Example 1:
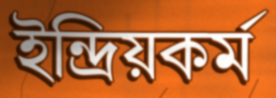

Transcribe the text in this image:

ইন্দ্রিয়কর্ম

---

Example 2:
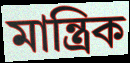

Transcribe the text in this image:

মান্ত্রিক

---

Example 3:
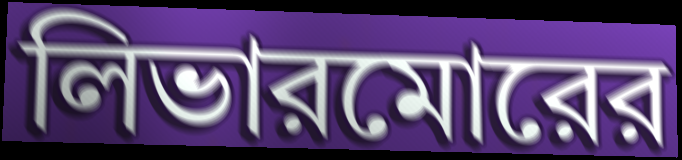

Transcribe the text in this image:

লিভারমোরের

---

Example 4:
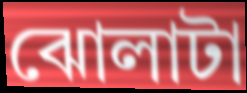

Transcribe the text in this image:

ঝোলাটা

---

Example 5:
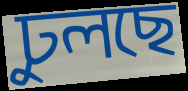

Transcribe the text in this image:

ঢুলছে